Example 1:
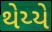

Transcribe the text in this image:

થેય્યે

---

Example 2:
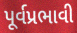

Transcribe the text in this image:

પૂર્વપ્રભાવી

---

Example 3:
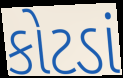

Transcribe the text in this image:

કોટડાં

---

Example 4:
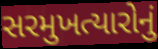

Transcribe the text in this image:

સરમુખત્યારોનું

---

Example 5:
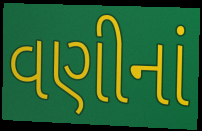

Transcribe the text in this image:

વણીનાં